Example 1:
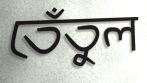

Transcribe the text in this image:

তেঁতুল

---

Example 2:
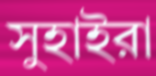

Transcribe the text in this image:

সুহাইরা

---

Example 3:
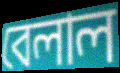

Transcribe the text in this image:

বেলাল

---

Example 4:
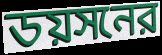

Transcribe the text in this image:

ডয়সনের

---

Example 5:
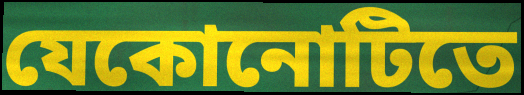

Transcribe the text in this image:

যেকোনোটিতে